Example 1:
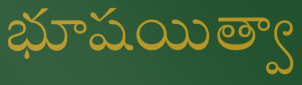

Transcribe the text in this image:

భూషయిత్వా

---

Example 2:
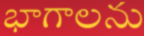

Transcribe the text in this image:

భాగాలను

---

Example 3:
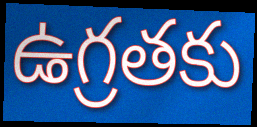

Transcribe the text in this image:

ఉగ్రతకు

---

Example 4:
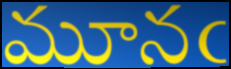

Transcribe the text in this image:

మూనఁ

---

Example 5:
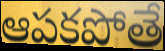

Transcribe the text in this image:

ఆపకపోతే